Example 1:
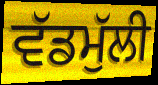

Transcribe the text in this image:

ਵੱਡਮੁੱਲੀ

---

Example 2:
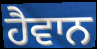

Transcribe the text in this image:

ਹੈਵਾਨ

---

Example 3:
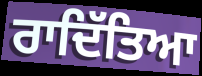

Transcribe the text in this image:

ਰਾਦਿੱਤਿਆ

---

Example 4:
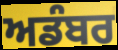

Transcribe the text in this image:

ਅਡੰਬਰ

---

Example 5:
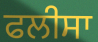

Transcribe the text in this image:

ਫਲੀਸਾ